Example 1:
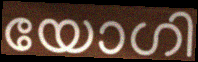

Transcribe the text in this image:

യോഗി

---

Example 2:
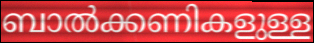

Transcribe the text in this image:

ബാൽക്കണികളുള്ള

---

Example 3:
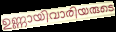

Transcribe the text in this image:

ഉണ്ണായിവാരിയരുടെ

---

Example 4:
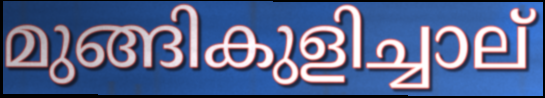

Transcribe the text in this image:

മുങ്ങികുളിച്ചാല്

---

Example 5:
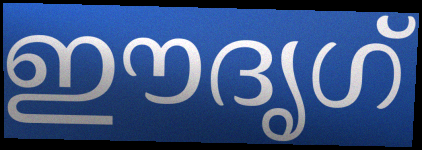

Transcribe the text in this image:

ഈദൃഗ്